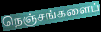
நெஞ்சங்களைப்